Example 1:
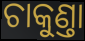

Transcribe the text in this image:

ଚାକୁଣ୍ତା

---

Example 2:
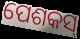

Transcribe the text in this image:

ପେଶକସ୍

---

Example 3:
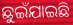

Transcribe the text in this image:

ଛୁଇଁଯାଇଛି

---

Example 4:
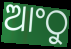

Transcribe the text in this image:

ଆଂଠୁ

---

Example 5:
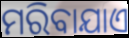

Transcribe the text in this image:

ମରିବାଯାଏ